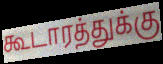
கூடாரத்துக்கு